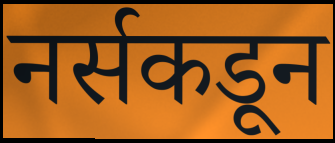
नर्सकडून